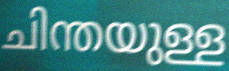
ചിന്തയുള്ള